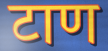
टाण